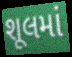
શૂલમાં